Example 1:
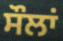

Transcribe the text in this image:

ਸੌਲਾਂ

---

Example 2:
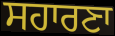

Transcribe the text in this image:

ਸਹਾਰਣਾ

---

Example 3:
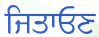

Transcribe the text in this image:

ਜਿਤਾਓਣ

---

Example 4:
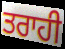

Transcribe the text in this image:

ਤਰਾਹੀ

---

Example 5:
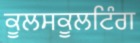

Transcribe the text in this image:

ਕੂਲਸਕੂਲਟਿੰਗ